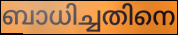
ബാധിച്ചതിനെ